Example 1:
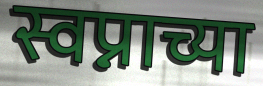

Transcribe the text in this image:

स्वप्नाच्या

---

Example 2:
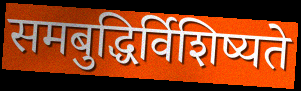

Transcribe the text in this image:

समबुद्धिर्विशिष्यते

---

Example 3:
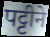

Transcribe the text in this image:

पट्टीने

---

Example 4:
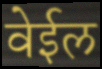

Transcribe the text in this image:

वेईल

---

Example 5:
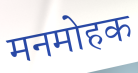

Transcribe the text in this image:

मनमोहक